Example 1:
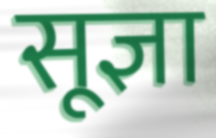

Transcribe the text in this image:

सूज्ञा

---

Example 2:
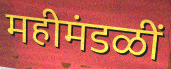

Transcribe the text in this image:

महीमंडळीं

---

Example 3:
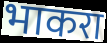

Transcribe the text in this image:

भाकरा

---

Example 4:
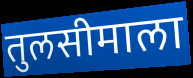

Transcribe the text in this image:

तुलसीमाला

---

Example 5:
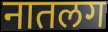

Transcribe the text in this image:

नातलग